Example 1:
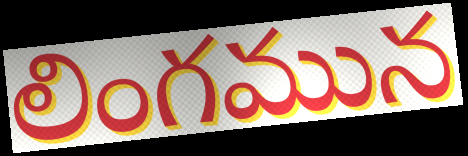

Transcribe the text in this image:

లింగమున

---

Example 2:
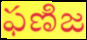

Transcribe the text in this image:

ఫణిజ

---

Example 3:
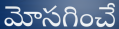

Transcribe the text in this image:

మోసగించే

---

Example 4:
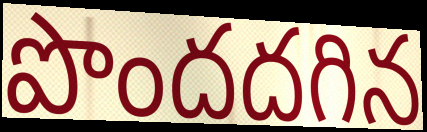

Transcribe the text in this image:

పొందదగిన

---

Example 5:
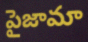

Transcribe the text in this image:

పైజామా